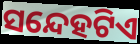
ସନ୍ଦେହଟିଏ